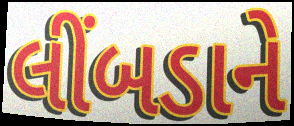
લીંબડાને